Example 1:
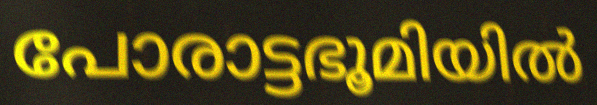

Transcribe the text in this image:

പോരാട്ടഭൂമിയിൽ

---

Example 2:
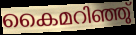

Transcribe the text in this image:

കൈമറിഞ്ഞു്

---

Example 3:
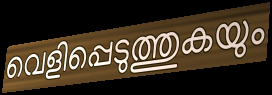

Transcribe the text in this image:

വെളിപ്പെടുത്തുകയും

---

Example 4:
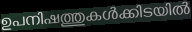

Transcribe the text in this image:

ഉപനിഷത്തുകൾക്കിടയിൽ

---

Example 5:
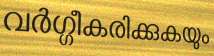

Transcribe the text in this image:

വർഗ്ഗീകരിക്കുകയും